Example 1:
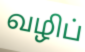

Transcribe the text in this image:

வழிப்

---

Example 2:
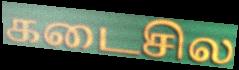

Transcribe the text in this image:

கடைசில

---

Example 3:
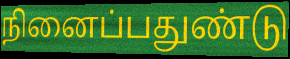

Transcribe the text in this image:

நினைப்பதுண்டு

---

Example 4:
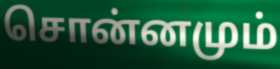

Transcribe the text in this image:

சொன்னமும்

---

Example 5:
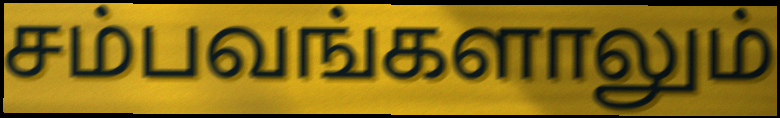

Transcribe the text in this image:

சம்பவங்களாலும்